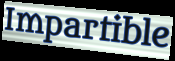
Impartible